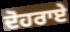
ਦੋਹਰਾਏ